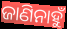
ଜାଣିନାହୁଁ